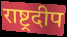
राष्ट्रदीप